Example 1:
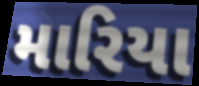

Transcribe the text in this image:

મારિયા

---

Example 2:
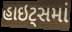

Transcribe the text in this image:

હાઇટ્સમાં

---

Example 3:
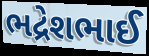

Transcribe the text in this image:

ભદ્રેશભાઈ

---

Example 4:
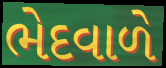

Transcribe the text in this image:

ભેદવાળે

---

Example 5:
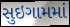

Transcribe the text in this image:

સુઇગામમાં